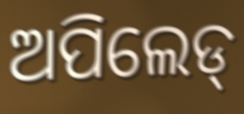
ଅପିଲେଡ୍